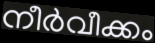
നീർവീക്കം